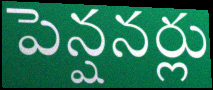
పెన్షనర్లు